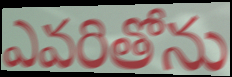
ఎవరితోను